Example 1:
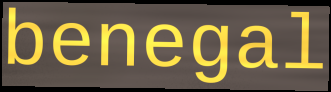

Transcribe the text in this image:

benegal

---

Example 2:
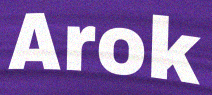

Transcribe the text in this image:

Arok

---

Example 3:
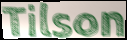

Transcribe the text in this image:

Tilson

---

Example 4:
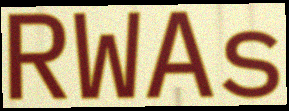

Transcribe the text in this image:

RWAs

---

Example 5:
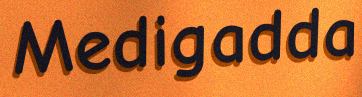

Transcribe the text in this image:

Medigadda